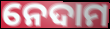
ନେଦାମ